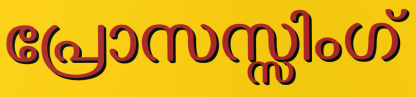
പ്രോസസ്സിംഗ്